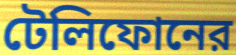
টেলিফোনের